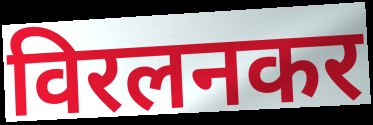
विरलनकर